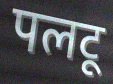
पलटू